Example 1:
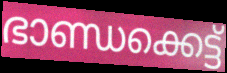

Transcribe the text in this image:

ഭാണ്ഡക്കെട്ട്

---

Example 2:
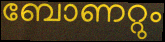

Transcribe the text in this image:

ബോണറ്റും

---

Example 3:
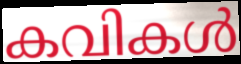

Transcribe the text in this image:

കവികൾ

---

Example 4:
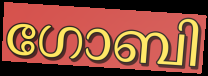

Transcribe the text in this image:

ഗോബി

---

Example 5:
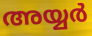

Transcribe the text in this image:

അയ്യർ